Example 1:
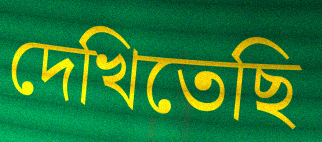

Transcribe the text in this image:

দেখিতেছি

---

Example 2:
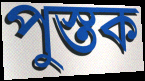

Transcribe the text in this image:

পুস্তক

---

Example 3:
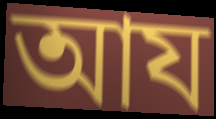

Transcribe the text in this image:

আয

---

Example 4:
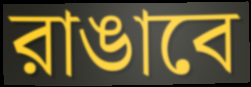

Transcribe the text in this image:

রাঙাবে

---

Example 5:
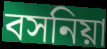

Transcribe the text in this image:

বসনিয়া